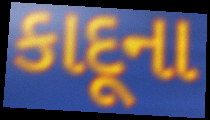
કાદૂના